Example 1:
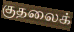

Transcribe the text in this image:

குதலைக்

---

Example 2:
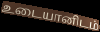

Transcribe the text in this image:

உடையானிடம்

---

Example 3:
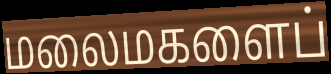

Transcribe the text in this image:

மலைமகளைப்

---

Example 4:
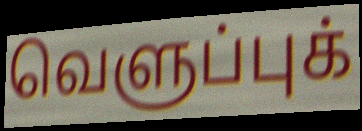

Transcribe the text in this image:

வெளுப்புக்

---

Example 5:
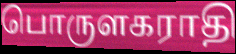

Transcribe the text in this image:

பொருளகராதி